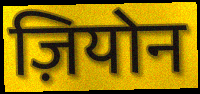
ज़ियोन